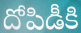
దోపిడీకి